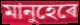
মানুহেৰে